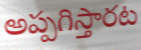
అప్పగిస్తారట